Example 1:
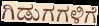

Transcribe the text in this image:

ಗಿಡುಗಗಳಿಗೆ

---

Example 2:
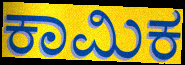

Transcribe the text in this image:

ಕಾಮಿಕ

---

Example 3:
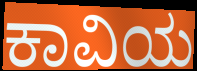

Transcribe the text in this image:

ಕಾವಿಯ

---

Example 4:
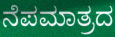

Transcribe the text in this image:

ನೆಪಮಾತ್ರದ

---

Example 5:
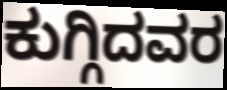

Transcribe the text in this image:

ಕುಗ್ಗಿದವರ